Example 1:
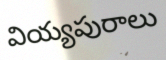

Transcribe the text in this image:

వియ్యపురాలు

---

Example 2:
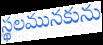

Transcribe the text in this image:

స్థలమునకును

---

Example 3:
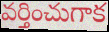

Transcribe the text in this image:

వర్తించుగాక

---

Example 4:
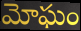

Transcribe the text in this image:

మోఘం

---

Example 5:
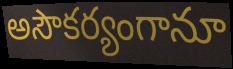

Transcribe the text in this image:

అసౌకర్యంగానూ